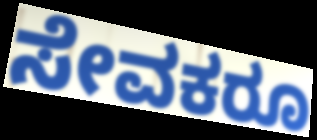
ಸೇವಕರೂ